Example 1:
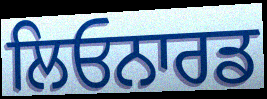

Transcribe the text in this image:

ਲਿਓਨਾਰਡ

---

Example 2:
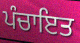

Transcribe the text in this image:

ਪੰਚਾਇਤ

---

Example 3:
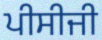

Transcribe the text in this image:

ਪੀਸੀਜੀ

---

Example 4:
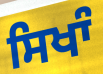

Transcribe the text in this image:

ਸਿਖਾੰ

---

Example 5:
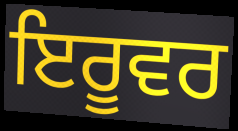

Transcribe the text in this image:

ਇਰੂਵਰ